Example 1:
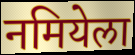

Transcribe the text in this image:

नमियेला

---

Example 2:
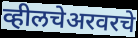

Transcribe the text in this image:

व्हीलचेअरवरचे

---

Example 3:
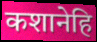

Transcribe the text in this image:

कशानेहि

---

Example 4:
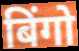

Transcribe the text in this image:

बिंगो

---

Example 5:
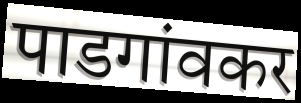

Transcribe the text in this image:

पाडगांवकर